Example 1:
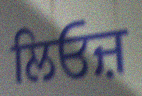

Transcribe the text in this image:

ਲਿਓਜ਼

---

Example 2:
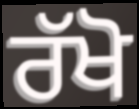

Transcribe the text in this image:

ਰੱਖੋ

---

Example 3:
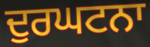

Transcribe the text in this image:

ਦੁਰਘਟਨਾ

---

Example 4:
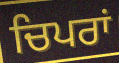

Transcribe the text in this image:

ਚਿਪਰਾਂ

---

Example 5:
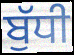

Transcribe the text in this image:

ਬੁੱਧੀ